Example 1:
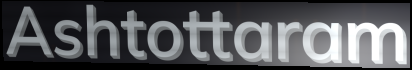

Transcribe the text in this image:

Ashtottaram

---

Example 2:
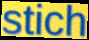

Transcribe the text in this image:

stich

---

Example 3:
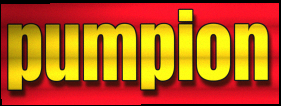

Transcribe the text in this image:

pumpion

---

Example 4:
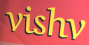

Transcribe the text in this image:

vishv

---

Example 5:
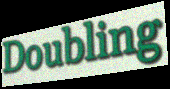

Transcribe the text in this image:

Doubling